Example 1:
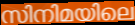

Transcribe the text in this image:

സിനിമയിലെ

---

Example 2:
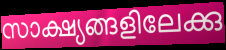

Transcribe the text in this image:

സാക്ഷ്യങ്ങളിലേക്കു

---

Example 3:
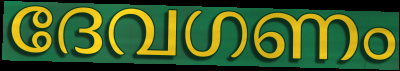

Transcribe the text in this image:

ദേവഗണം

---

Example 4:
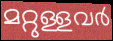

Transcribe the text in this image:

മറ്റുള്ളവർ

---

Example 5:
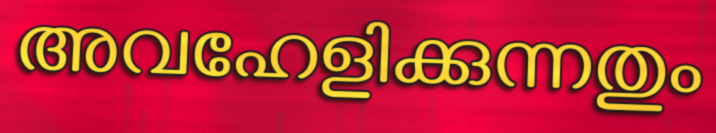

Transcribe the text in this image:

അവഹേളിക്കുന്നതും